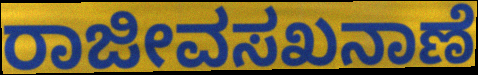
ರಾಜೀವಸಖನಾಣೆ